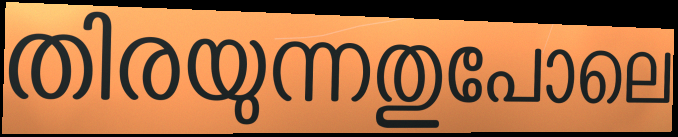
തിരയുന്നതുപോലെ